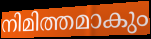
നിമിത്തമാകും